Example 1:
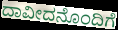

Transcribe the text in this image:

ದಾವೀದನೊಂದಿಗೆ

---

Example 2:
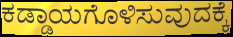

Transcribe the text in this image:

ಕಡ್ಡಾಯಗೊಳಿಸುವುದಕ್ಕೆ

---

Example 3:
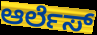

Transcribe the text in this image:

ಆರ್ಲೆಸ್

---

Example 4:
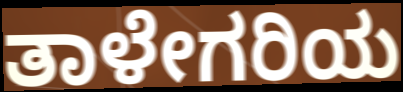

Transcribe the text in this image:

ತಾಳೇಗರಿಯ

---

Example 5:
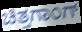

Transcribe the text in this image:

ಚಿತ್ತಗಾಂಗ್